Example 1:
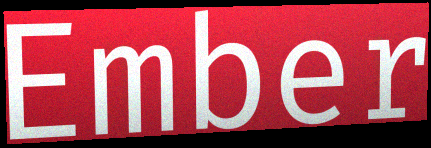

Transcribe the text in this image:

Ember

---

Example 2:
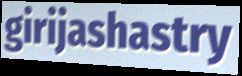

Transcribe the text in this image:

girijashastry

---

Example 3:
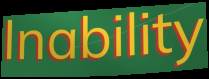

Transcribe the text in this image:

Inability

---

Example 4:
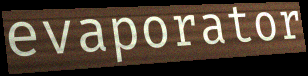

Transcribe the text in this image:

evaporator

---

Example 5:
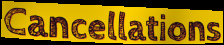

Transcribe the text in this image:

Cancellations